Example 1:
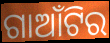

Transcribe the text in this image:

ଗାଆଁଟିର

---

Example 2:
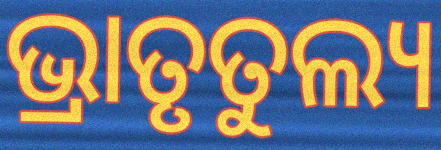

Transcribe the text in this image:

ଭ୍ରାତୃତୁଲ୍ୟ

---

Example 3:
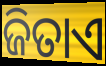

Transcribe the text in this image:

ଜିତାଏ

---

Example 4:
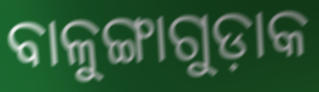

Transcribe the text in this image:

ବାଳୁଙ୍ଗାଗୁଡ଼ାକ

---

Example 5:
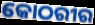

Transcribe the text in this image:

କୋଠରୀର